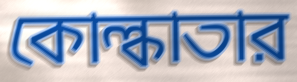
কোল্কাতার